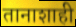
तानाशाही